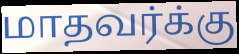
மாதவர்க்கு